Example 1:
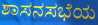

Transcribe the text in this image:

ಶಾಸನಸಭೆಯ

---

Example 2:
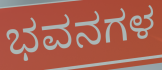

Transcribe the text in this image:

ಭವನಗಳ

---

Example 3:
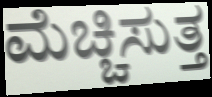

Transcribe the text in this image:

ಮೆಚ್ಚಿಸುತ್ತ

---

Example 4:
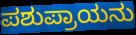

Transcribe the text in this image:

ಪಶುಪ್ರಾಯನು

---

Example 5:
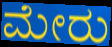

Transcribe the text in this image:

ಮೇರು